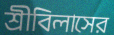
শ্রীবিলাসের